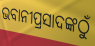
ଭବାନୀପ୍ରସାଦଙ୍କଠୁଁ